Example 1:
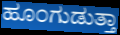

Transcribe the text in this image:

ಹೂಂಗುಡುತ್ತಾ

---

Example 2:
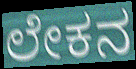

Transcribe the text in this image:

ಲೇಕನ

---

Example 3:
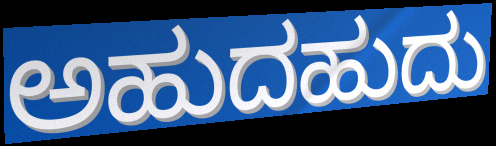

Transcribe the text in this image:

ಅಹುದಹುದು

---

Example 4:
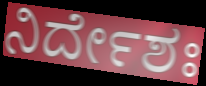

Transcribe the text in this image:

ನಿರ್ದೇಶಃ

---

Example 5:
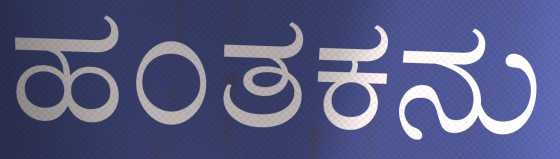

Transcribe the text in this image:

ಹಂತಕನು